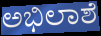
ಅಭಿಲಾಶೆ